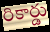
రికార్డు